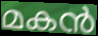
മകൻ